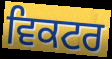
ਵਿਕਟਰ